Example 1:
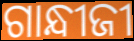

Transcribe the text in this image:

ଗାନ୍ଧୀଜୀ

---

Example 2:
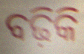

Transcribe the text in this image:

ବଢ଼ିକି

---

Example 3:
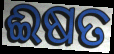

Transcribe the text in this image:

ଈଷତ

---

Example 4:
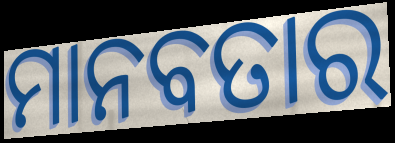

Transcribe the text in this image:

ମାନବତାର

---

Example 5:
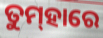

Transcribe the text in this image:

ତୁମ୍‌ହାରେ